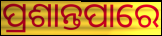
ପ୍ରଶାନ୍ତପାରେ